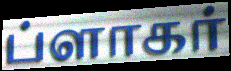
ப்ளாகர்